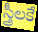
స్త్రీలకే